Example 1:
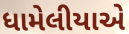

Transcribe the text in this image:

ધામેલીયાએ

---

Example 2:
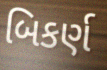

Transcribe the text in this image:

બિકર્ણ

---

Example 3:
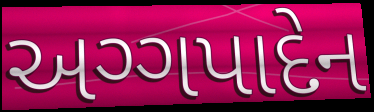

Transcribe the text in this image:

અગ્ગપાદેન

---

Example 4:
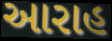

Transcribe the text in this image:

આરાહ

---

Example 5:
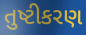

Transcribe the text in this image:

તુષ્ટીકરણ